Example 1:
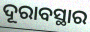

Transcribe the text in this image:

ଦୂରାବସ୍ଥାର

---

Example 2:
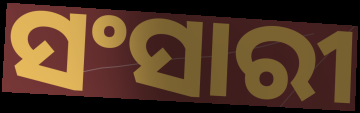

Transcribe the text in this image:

ସଂସାରୀ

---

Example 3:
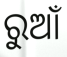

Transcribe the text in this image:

ରୁଆଁ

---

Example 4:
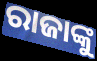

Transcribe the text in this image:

ରାଜାଙ୍କୁ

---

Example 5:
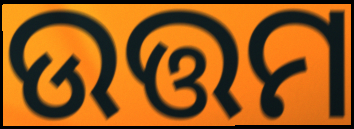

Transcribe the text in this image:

ଉତ୍ତମ